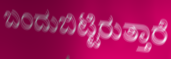
ಬಂದುಬಿಟ್ಟಿರುತ್ತಾರೆ